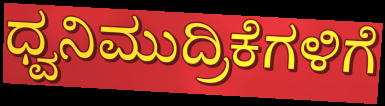
ಧ್ವನಿಮುದ್ರಿಕೆಗಳಿಗೆ